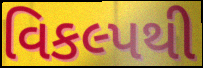
વિકલ્પથી